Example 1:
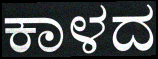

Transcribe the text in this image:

ಕಾಳದ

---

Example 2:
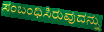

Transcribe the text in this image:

ಸಂಬಂಧಿಸಿರುವುದನ್ನು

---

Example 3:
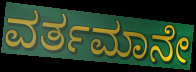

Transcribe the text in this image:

ವರ್ತಮಾನೇ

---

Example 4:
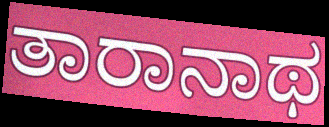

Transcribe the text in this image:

ತಾರಾನಾಥ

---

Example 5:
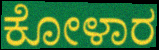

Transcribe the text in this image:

ಕೋಳಾರ